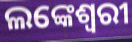
ଲଙ୍କେଶ୍ଵରୀ